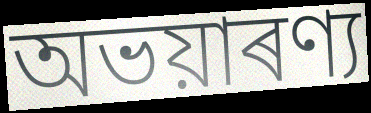
অভয়াৰণ্য